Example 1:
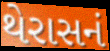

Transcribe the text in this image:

થેરાસનં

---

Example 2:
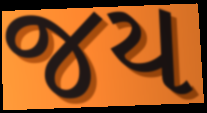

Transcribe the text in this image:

જય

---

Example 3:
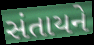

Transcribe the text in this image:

સંતાયને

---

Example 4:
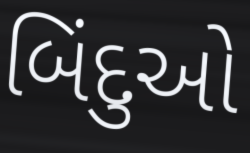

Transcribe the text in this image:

બિંદુઓ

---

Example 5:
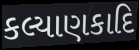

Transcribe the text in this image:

કલ્યાણકાદિ